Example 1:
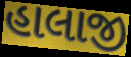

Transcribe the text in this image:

હાલાજી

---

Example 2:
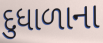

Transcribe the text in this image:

દુધાળાના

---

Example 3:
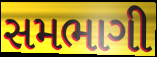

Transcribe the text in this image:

સમભાગી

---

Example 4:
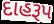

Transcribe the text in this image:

દાહરૂપ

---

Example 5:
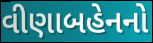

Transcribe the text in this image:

વીણાબહેનનો